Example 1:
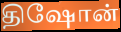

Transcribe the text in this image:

திஷோன்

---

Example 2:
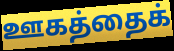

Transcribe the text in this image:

ஊகத்தைக்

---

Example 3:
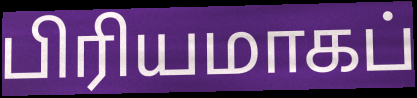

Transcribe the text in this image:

பிரியமாகப்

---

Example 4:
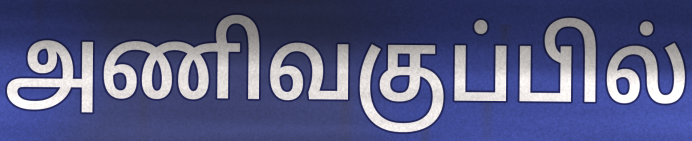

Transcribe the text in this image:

அணிவகுப்பில்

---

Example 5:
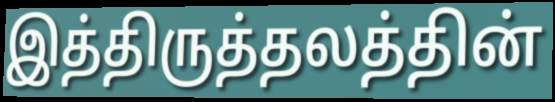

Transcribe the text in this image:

இத்திருத்தலத்தின்